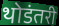
थोडंतरी